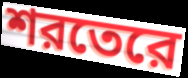
শরতেরে